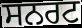
ਸਨਰਟ